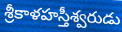
శ్రీకాళహస్తీశ్వరుడు